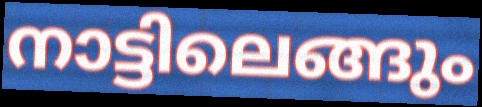
നാട്ടിലെങ്ങും